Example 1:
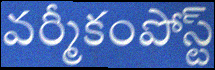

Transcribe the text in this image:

వర్మీకంపోస్ట్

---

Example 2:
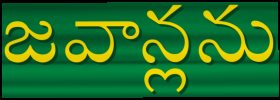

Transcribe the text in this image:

జవాన్లను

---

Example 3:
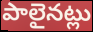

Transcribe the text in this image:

పాలైనట్లు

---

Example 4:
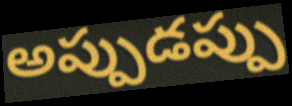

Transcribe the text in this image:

అప్పుడప్పు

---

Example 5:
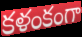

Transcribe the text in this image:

కళంకంగా